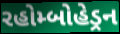
રહોમ્બોહેડ્રન